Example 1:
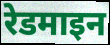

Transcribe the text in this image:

रेडमाइन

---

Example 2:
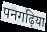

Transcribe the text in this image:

पनगढ़िया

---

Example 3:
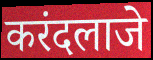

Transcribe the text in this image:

करंदलाजे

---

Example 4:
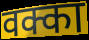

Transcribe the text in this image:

वक्का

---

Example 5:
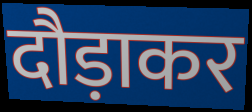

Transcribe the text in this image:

दौड़ाकर